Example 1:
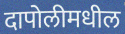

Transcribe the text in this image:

दापोलीमधील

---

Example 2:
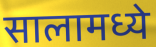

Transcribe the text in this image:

सालामध्ये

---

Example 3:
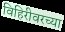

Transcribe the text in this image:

विहिरीवरच्या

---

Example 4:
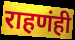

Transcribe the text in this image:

राहणंही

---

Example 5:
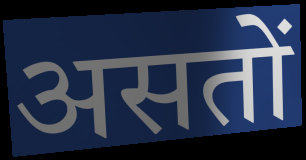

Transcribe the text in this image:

असतों